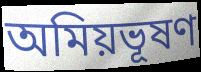
অমিয়ভূষণ